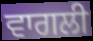
ਵਾਗਲੀ